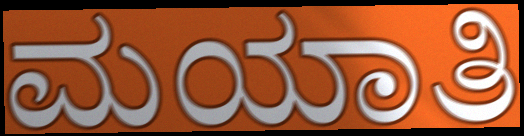
ಮಯಾತಿ